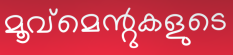
മൂവ്മെന്റുകളുടെ